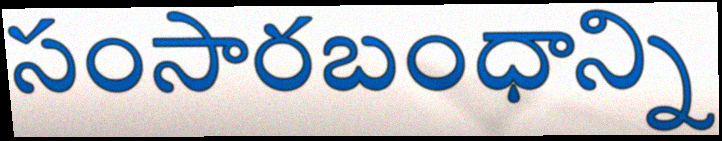
సంసారబంధాన్ని